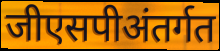
जीएसपीअंतर्गत